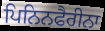
ਪਿਨਿਨਫੈਰੀਨਾ